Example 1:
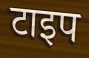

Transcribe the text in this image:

टाइप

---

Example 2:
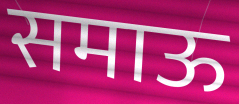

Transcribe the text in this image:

समाऊ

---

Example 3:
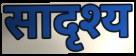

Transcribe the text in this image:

सादृश्य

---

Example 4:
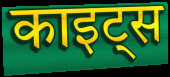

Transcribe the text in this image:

काइट्स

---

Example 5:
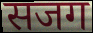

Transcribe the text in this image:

सजग